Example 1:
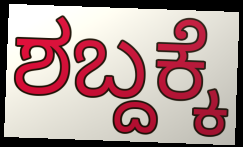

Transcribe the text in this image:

ಶಬ್ದಕ್ಕೆ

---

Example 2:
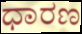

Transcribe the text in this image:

ಧಾರಣ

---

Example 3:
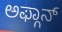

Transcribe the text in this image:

ಅಫ್ಗಾನ್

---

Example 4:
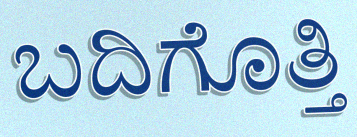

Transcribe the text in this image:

ಬದಿಗೊತ್ತಿ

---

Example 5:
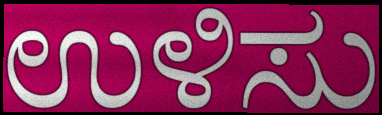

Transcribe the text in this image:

ಉಳಿಸು